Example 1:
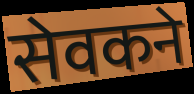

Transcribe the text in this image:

सेवकने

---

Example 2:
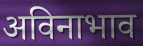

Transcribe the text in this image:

अविनाभाव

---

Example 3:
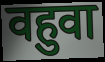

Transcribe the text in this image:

वहुवा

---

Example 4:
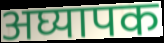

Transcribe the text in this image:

अघ्यापक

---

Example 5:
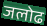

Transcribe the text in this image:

जलोढ